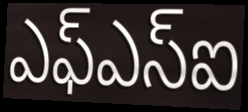
ఎఫ్ఎస్ఐ